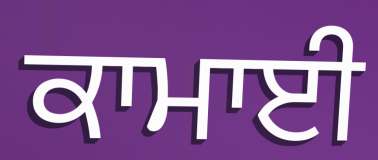
ਕਾਮਾਈ